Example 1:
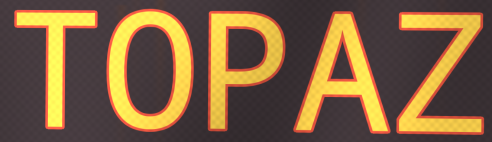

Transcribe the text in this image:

TOPAZ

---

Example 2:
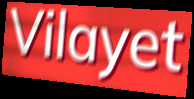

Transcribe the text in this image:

Vilayet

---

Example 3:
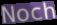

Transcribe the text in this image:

Noch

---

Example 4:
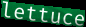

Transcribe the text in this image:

lettuce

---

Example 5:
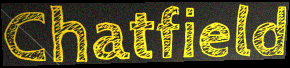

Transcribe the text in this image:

Chatfield